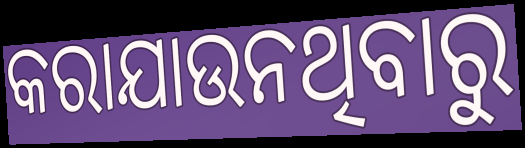
କରାଯାଉନଥିବାରୁ